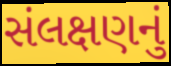
સંલક્ષણનું